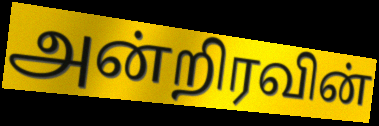
அன்றிரவின்